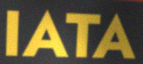
IATA